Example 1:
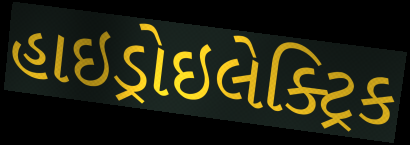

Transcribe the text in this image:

હાઇડ્રોઇલેક્ટ્રિક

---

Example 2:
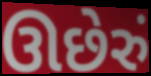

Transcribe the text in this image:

ઊછેરું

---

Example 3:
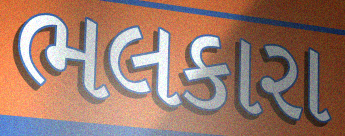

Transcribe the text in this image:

ભલકારા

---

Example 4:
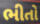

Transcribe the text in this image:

ભીતો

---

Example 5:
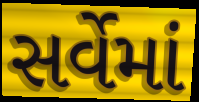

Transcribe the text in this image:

સર્વેમાં